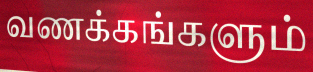
வணக்கங்களும்